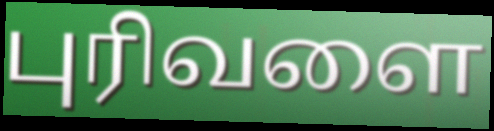
புரிவளை